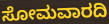
ಸೋಮವಾರದಿ